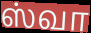
ஸ்வா